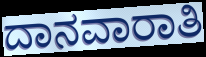
ದಾನವಾರಾತಿ